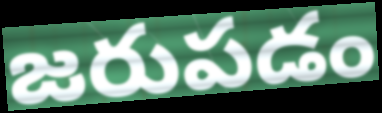
జరుపడం